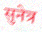
सुनेत्र